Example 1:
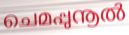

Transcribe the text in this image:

ചെമപ്പുനൂൽ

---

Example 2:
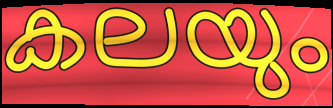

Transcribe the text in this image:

കലയും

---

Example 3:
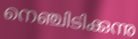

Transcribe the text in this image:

നെഞ്ചിടിക്കുന്നു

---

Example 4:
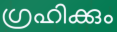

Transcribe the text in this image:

ഗ്രഹിക്കും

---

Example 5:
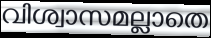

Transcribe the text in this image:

വിശ്വാസമല്ലാതെ